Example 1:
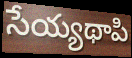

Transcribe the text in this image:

సేయ్యథాపి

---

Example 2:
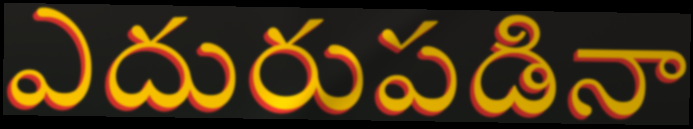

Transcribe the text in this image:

ఎదురుపడినా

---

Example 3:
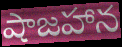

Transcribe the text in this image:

షాజహాన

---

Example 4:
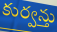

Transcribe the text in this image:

కుర్వన్తు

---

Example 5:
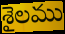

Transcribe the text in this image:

శైలము